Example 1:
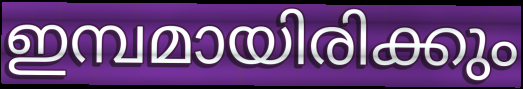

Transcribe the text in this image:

ഇമ്പമായിരിക്കും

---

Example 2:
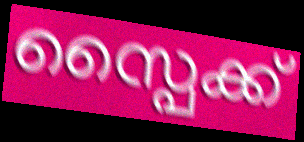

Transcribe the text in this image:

സ്പൈക്ക്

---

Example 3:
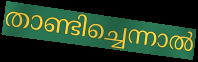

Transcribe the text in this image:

താണ്ടിച്ചെന്നാൽ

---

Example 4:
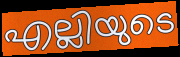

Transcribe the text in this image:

എല്ലിയുടെ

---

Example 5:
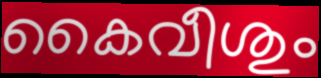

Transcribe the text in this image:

കൈവീശും